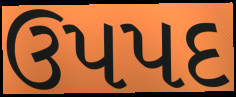
ઉપપદ